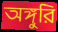
অঙ্গুরি